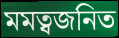
মমত্বজনিত